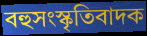
বহুসংস্কৃতিবাদক